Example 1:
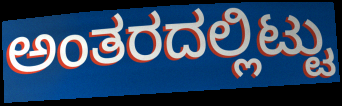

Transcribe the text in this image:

ಅಂತರದಲ್ಲಿಟ್ಟು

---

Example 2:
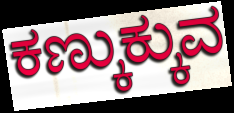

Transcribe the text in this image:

ಕಣ್ಕುಕ್ಕುವ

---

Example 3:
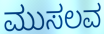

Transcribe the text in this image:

ಮುಸಲವ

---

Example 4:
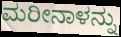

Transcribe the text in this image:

ಮರೀನಾಳನ್ನು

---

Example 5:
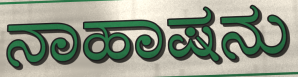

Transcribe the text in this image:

ನಾಹಾಷನು